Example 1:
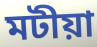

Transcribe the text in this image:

মটীয়া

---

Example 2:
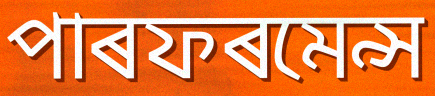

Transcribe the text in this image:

পাৰফৰমেন্স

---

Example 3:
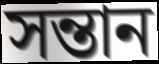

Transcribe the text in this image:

সন্তান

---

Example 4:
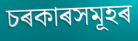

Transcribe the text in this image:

চৰকাৰসমূহৰ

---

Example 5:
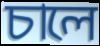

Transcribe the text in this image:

চালে